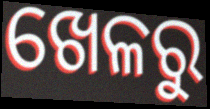
ଖେଳରୁ